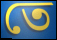
তে